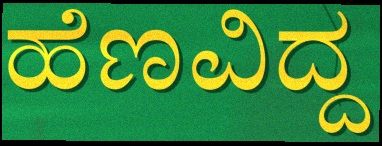
ಹೆಣವಿದ್ದ